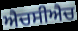
ਐਚਸੀਐਚ